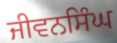
ਜੀਵਨਸਿੰਘ